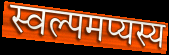
स्वल्पमप्यस्य